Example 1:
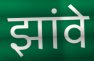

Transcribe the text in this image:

झांवे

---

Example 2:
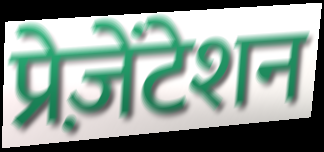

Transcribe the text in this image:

प्रेज़ेंटेशन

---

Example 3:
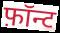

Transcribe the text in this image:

फ़ॉन्ट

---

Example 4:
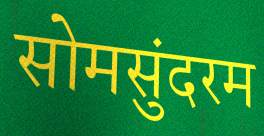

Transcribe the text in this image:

सोमसुंदरम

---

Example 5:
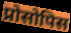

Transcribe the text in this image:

प्रोसोपिस